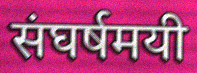
संघर्षमयी